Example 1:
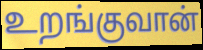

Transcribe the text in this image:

உறங்குவான்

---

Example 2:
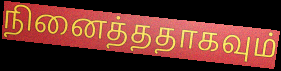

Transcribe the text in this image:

நினைத்ததாகவும்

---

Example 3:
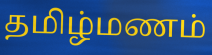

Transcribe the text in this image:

தமிழ்மணம்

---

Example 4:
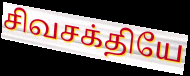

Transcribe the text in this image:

சிவசக்தியே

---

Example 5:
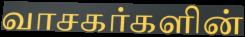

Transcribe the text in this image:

வாசகர்களின்